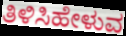
ತಿಳಿಸಿಹೇಳುವ